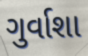
ગુર્વાશા